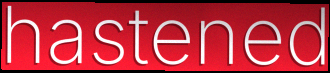
hastened